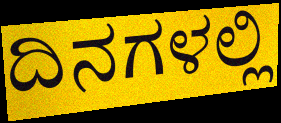
ದಿನಗಳಲ್ಲಿ